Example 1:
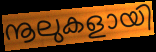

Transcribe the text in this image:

നൂലുകളായി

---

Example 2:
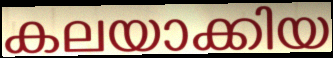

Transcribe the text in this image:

കലയാക്കിയ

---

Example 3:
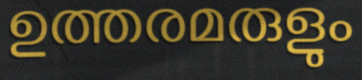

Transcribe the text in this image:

ഉത്തരമരുളും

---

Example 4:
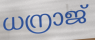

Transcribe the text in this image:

ധന്രാജ്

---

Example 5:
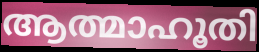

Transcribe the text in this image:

ആത്മാഹൂതി